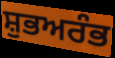
ਸ਼ੁਭਅਰੰਭ